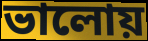
ভালোয়